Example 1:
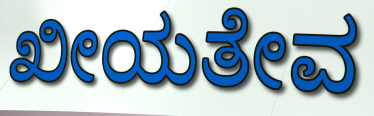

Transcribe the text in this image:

ಖೀಯತೇವ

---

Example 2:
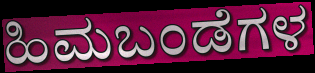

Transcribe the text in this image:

ಹಿಮಬಂಡೆಗಳ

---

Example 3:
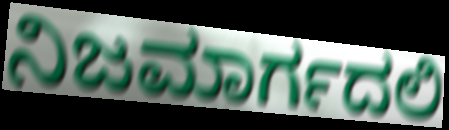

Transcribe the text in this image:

ನಿಜಮಾರ್ಗದಲಿ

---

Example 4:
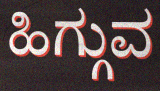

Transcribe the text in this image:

ಹಿಗ್ಗುವ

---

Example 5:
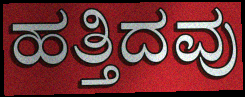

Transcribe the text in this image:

ಹತ್ತಿದವು